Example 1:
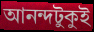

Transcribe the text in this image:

আনন্দটুকুই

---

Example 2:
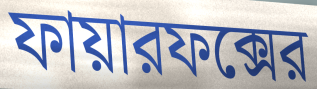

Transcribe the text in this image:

ফায়ারফক্সের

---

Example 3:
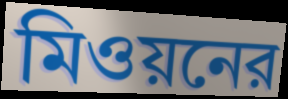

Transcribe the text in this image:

মিওয়নের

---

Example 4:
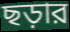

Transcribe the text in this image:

ছড়ার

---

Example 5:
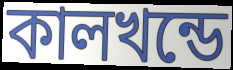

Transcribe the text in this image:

কালখন্ডে